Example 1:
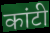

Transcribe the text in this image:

कांटी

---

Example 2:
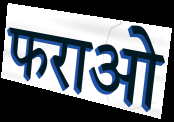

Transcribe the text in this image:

फराओ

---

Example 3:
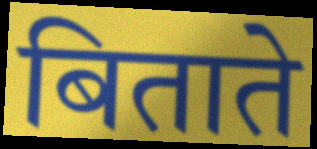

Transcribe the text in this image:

बिताते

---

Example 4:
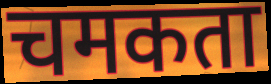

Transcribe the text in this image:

चमकता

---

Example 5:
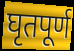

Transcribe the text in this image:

घृतपूर्ण